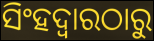
ସିଂହଦ୍ୱାରଠାରୁ